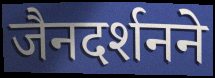
जैनदर्शनने